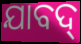
ଯାବଦ୍